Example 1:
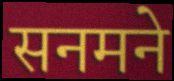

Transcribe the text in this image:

सनमने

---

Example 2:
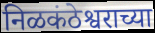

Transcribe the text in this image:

निळकंठेश्वराच्या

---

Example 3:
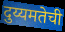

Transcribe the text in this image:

दुय्यमतेची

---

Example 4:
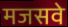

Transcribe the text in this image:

मजसवे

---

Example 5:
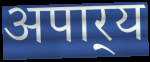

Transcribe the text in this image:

अपार्य